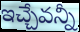
ఇచ్చేవన్నీ